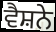
ਵੈਸ਼ਨੇ